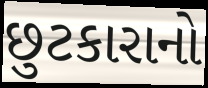
છુટકારાનો